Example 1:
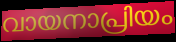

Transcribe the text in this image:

വായനാപ്രിയം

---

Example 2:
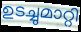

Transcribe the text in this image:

ഉടച്ചുമാറ്റി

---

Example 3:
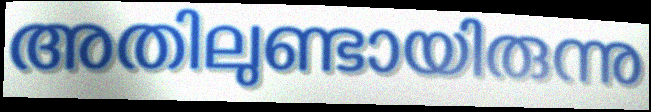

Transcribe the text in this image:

അതിലുണ്ടായിരുന്നു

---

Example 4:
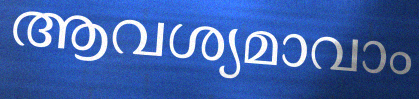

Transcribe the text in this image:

ആവശ്യമാവാം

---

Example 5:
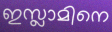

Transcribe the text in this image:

ഇസ്ലാമിനെ